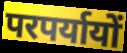
परपर्यायों